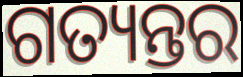
ଗତ୍ୟନ୍ତର